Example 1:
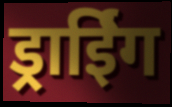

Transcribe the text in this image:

ड्राईिंग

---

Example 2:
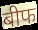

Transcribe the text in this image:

बीफ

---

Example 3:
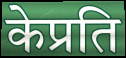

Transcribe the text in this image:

केप्रति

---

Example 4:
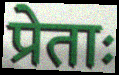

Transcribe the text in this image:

प्रेताः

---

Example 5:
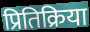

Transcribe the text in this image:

प्रितिक्रिया